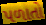
પળાતો